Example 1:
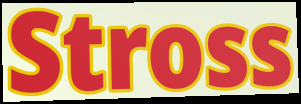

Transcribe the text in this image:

Stross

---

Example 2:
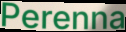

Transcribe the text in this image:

Perenna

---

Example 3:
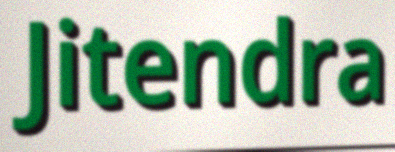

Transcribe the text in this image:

Jitendra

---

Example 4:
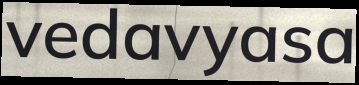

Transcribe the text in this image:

vedavyasa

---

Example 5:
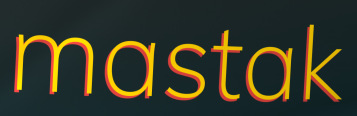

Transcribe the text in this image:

mastak